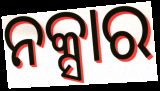
ନକ୍ସାର